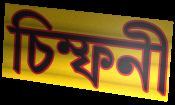
চিম্ফনী